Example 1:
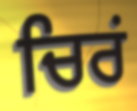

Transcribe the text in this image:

ਚਿਰਂ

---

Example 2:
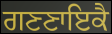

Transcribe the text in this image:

ਗਣਣਾਇਕੈ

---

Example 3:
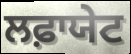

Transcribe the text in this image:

ਲਫ਼ਾਯੇਟ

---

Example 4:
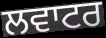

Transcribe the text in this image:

ਲਵਾਟਰ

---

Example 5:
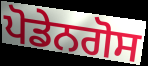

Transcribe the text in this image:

ਪੋਡੇਨਗੋਸ